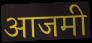
आजमी